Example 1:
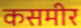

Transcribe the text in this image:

कसमीर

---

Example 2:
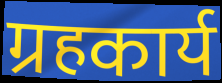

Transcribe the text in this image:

ग्रहकार्य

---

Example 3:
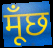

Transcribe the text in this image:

मूँछ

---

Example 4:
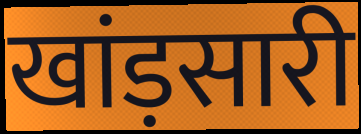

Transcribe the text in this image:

खांड़सारी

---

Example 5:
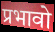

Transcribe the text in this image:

प्रभावो